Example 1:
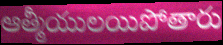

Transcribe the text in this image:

ఆత్మీయులయిపోతారు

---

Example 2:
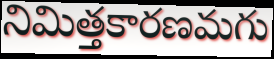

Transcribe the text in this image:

నిమిత్తకారణమగు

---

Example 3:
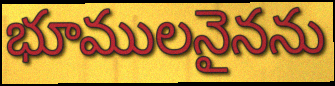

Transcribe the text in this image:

భూములనైనను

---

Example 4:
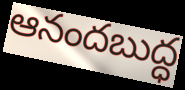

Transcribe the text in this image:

ఆనందబుద్ధ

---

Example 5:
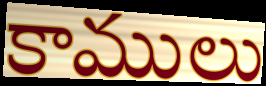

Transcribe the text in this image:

కాములు